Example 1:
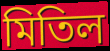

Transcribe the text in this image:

মিতিল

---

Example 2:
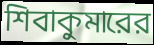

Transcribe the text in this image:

শিবাকুমারের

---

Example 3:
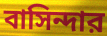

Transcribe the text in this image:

বাসিন্দার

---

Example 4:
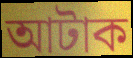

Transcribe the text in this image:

আটাক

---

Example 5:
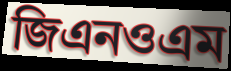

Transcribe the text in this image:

জিএনওএম